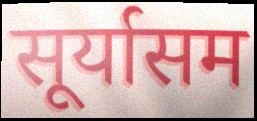
सूर्यासम